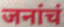
जनांचं